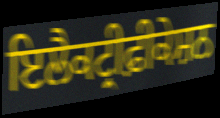
ਇਲੈਕਟ੍ਰੀਫ਼ੀਕੇਸ਼ਨ